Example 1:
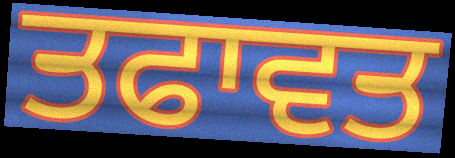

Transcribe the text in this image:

ਤਫਾਵਤ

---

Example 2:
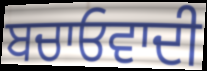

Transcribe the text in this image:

ਬਚਾਓਵਾਦੀ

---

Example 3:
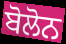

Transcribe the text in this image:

ਬੋਲੋਨ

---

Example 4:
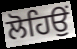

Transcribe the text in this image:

ਲੋਹਿਉਂ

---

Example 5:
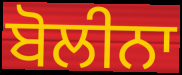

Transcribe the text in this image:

ਬੋਲੀਨਾ